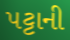
પટ્ટાની